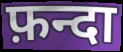
फ़न्दा